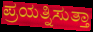
ಪ್ರಯತ್ನಿಸುತ್ತಾ